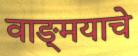
वाङ्‍मयाचे